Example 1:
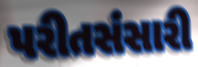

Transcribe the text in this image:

પરીતસંસારી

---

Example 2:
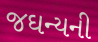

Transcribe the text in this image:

જઘન્યની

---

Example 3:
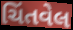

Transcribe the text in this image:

ચિંતવેલ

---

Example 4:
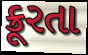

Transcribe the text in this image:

ક્રૂરતા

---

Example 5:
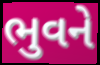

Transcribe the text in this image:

ભુવને